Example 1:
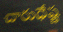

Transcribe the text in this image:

చారుధేష్ణ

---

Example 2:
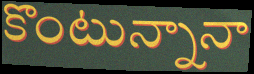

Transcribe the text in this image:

కొంటున్నానా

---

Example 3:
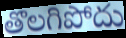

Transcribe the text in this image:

తొలగిపోదు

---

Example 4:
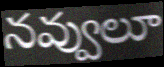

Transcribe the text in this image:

నవ్వులూ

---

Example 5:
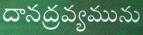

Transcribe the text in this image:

దానద్రవ్యమును